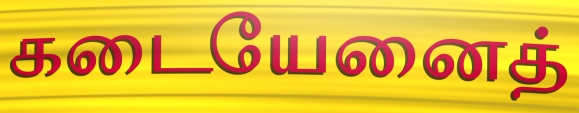
கடையேனைத்